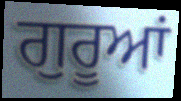
ਗੁਰੂਆਂ